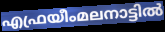
എഫ്രയീംമലനാട്ടിൽ